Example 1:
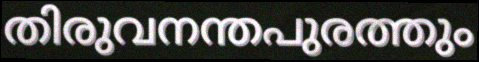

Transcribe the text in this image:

തിരുവനന്തപുരത്തും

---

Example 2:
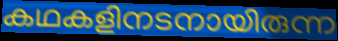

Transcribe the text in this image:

കഥകളിനടനായിരുന്ന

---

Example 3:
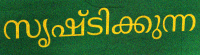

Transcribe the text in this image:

സൃഷ്ടിക്കുന്ന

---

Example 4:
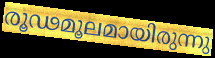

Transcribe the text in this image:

രൂഢമൂലമായിരുന്നു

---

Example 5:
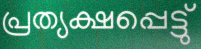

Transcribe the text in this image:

പ്രത്യക്ഷപ്പെട്ടു്